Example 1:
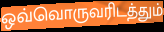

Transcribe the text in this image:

ஒவ்வொருவரிடத்தும்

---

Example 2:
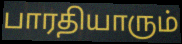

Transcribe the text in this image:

பாரதியாரும்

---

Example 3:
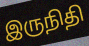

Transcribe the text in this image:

இருநிதி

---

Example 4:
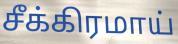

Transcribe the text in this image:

சீக்கிரமாய்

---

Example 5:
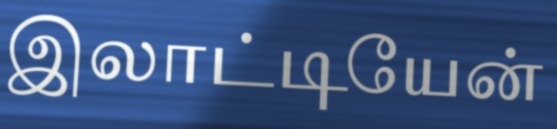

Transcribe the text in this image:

இலாட்டியேன்